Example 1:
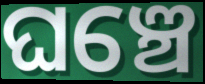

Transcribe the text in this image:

ଘଞ୍ଚେ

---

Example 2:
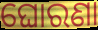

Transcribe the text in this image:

ଘୋରଣା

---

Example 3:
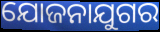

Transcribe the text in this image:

ଯୋଜନାଯୁଗର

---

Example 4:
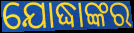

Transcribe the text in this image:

ଯୋଦ୍ଧାଙ୍କର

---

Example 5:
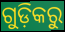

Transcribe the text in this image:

ଗୁଡ଼ିକରୁ